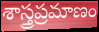
శాస్త్రప్రమాణం